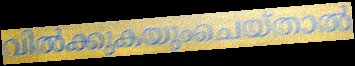
വിൽക്കുകയുംചെയ്താൽ